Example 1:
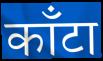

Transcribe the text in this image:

काँटा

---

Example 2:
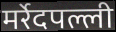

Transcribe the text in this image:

मर्रेदपल्ली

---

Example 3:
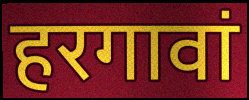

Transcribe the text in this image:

हरगावां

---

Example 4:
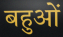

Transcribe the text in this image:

बहुओं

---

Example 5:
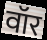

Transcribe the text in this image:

वॉर